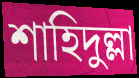
শাহিদুল্লা